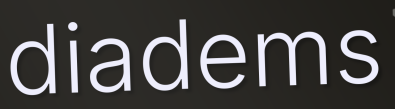
diadems